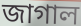
জাগাল